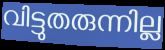
വിട്ടുതരുന്നില്ല